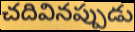
చదివినప్పుడు